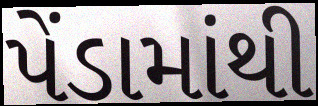
પેંડામાંથી